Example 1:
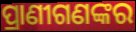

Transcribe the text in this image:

ପ୍ରାଣୀଗଣଙ୍କର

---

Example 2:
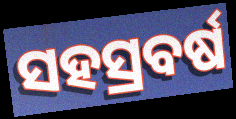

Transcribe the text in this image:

ସହସ୍ରବର୍ଷ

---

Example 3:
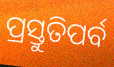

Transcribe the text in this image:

ପ୍ରସ୍ତୁତିପର୍ବ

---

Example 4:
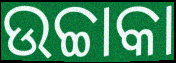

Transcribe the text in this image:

ଉଚ୍ଚାକା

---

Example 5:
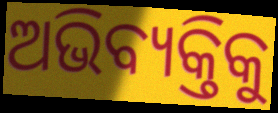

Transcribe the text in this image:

ଅଭିବ୍ୟକ୍ତିକୁ